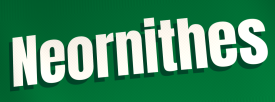
Neornithes